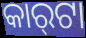
କାର୍‍ଟା